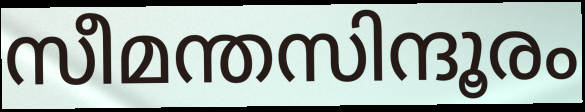
സീമന്തസിന്ദൂരം